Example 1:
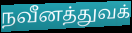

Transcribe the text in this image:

நவீனத்துவக்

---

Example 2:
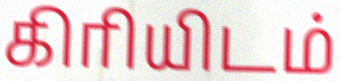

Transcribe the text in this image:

கிரியிடம்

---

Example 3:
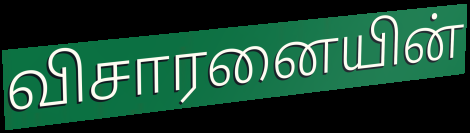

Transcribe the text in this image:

விசாரனையின்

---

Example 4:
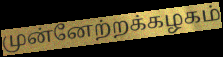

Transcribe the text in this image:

முன்னேற்றக்கழகம்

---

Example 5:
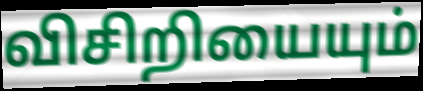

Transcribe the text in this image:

விசிறியையும்